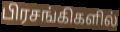
பிரசங்கிகளில்